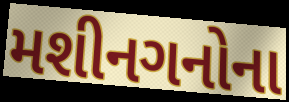
મશીનગનોના